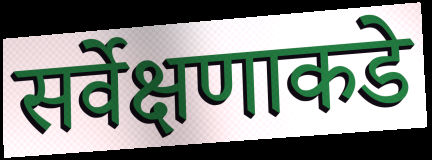
सर्वेक्षणाकडे